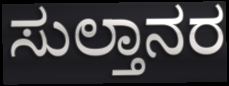
ಸುಲ್ತಾನರ